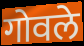
गोवले